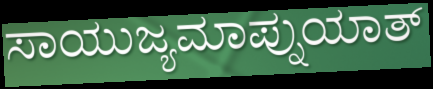
ಸಾಯುಜ್ಯಮಾಪ್ನುಯಾತ್